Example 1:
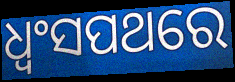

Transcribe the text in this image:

ଧ୍ବଂସପଥରେ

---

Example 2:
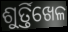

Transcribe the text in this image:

ଶୁର୍ତ୍ତିଖେଳ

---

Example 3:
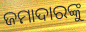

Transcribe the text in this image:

ଜମାଦାରଙ୍କୁ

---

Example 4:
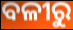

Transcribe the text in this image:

ବଳୀରୁ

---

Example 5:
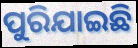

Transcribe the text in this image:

ପୁରିଯାଇଛି